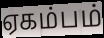
ஏகம்பம்